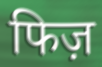
फिज़